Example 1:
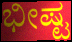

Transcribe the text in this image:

ಭೀಷ್ಟ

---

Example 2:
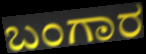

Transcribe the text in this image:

ಬಂಗಾರ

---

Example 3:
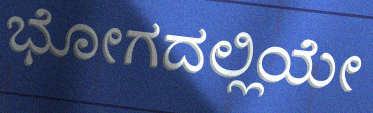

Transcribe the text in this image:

ಭೋಗದಲ್ಲಿಯೇ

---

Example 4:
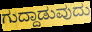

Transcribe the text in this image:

ಗುದ್ದಾಡುವುದು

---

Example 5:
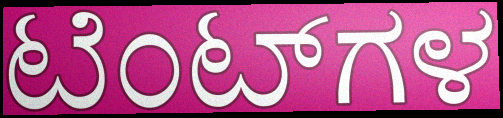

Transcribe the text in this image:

ಟೆಂಟ್‌ಗಳ